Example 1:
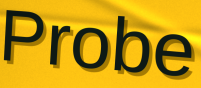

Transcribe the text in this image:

Probe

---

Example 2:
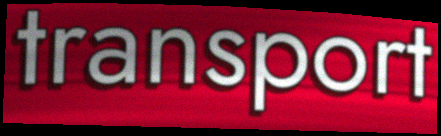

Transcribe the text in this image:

transport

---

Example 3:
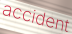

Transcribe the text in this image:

accident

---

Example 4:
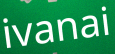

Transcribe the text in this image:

ivanai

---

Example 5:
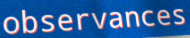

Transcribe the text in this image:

observances